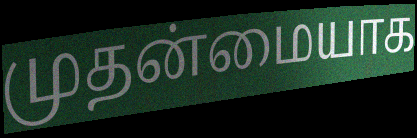
முதன்மையாக